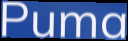
Puma